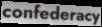
confederacy